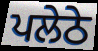
ਪਲੇਠੇ